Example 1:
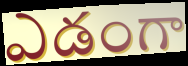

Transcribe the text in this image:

ఎడంగా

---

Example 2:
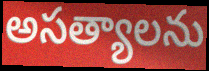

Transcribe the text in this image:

అసత్యాలను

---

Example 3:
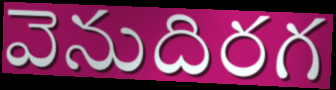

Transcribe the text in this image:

వెనుదిరగ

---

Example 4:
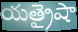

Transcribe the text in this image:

యత్రైషా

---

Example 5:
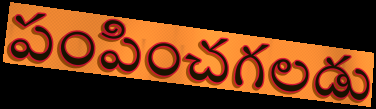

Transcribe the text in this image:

పంపించగలడు